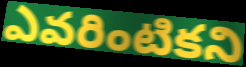
ఎవరింటికని